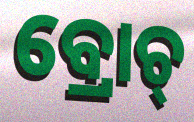
ବ୍ରୋଚ୍